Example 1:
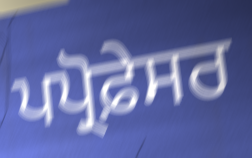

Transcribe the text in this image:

ਪਪ੍ਰੋਫ਼ੇਸਰ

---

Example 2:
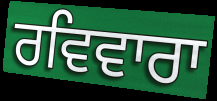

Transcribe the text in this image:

ਰਵਿਵਾਰਾ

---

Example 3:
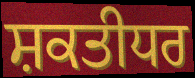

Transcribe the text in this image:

ਸ਼ਕਤੀਧਰ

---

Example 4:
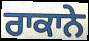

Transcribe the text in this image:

ਰਾਕਾਨੇ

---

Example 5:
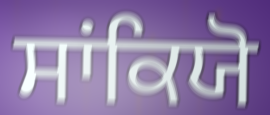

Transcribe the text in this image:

ਸਾਂਕਿਯੋ